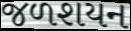
જળશયન